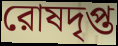
রোষদৃপ্ত